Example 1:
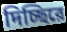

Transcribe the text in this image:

দিচ্ছিরে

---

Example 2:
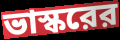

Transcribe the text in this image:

ভাস্করের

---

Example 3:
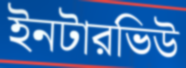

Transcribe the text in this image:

ইনটারভিউ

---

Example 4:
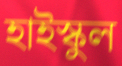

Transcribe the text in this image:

হাইস্কুল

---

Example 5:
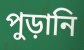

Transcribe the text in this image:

পুড়ানি